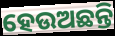
ହେଉଅଛନ୍ତି